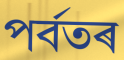
পৰ্বতৰ